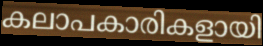
കലാപകാരികളായി